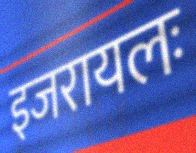
इजरायलः